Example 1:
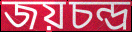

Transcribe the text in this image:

জয়চন্দ্র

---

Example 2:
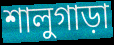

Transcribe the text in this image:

শালুগাড়া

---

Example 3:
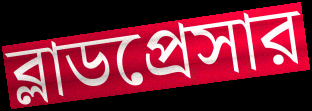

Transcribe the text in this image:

ব্লাডপ্রেসার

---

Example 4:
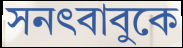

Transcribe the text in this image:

সনৎবাবুকে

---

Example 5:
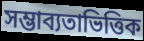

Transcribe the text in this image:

সম্ভাব্যতাভিত্তিক